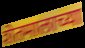
शेतमालाच्या